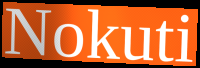
Nokuti